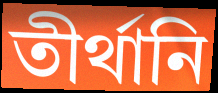
তীর্থানি